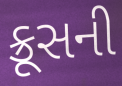
ક્રૂસની